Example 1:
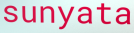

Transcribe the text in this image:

sunyata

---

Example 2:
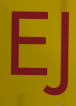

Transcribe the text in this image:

EJ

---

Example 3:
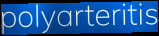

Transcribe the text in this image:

polyarteritis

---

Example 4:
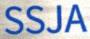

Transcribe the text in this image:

SSJA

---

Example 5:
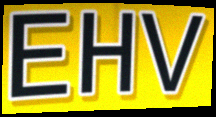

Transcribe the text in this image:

EHV